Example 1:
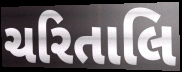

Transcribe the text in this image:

ચરિતાલિ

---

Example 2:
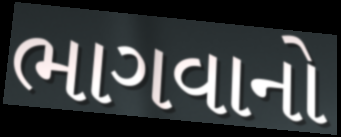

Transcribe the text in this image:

ભાગવાનો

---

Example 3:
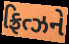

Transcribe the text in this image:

ફ્રિત્ઝને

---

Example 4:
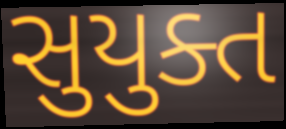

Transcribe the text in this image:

સુયુક્ત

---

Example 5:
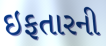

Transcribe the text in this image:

ઇફતારની